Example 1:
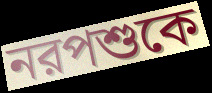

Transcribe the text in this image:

নরপশুকে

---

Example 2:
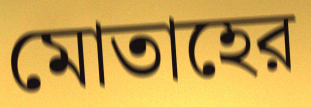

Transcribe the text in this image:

মোতাহের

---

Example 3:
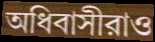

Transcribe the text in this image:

অধিবাসীরাও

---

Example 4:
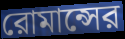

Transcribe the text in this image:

রোমান্সের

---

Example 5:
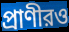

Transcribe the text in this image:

প্রাণীরও